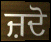
ਜ਼ਦੋ